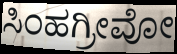
ಸಿಂಹಗ್ರೀವೋ